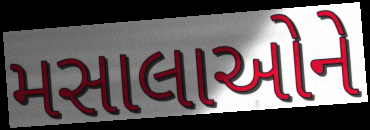
મસાલાઓને